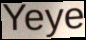
Yeye